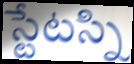
స్టేటస్ని